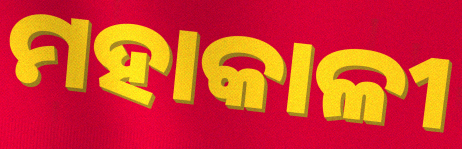
ମହାକାଳୀ